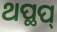
ଥପ୍ଥପ୍